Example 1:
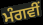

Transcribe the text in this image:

ਮੰਗਵੀਂ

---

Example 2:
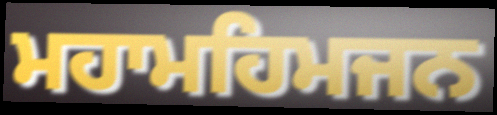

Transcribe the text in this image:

ਮਹਾਮਹਿਮਜਨ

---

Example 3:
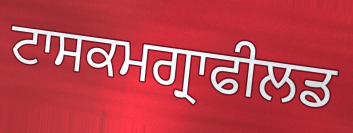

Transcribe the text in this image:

ਟਾਸਕਮਗ੍ਰਾਫੀਲਡ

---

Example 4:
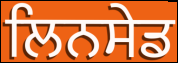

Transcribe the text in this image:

ਲਿਨਸੇਡ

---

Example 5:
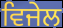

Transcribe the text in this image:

ਵਿਜੇਲ